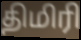
திமிரி